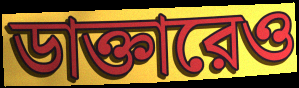
ডাক্তারেও